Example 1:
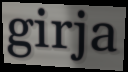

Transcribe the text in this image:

girja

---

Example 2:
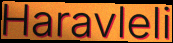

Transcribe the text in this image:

Haravleli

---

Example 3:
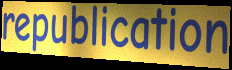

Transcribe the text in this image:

republication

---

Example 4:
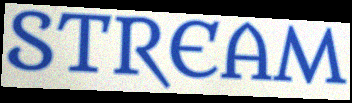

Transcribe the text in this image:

STREAM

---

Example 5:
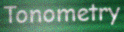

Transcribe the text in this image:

Tonometry